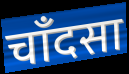
चाँदसा